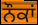
ਨੌਕਾਂ